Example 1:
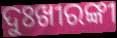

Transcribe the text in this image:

ଦୁଃଖୀରଙ୍କୀ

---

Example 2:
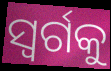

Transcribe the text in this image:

ସ୍ୱର୍ଗକୁ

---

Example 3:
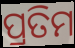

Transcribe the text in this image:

ପ୍ରତିମ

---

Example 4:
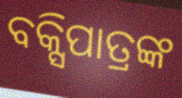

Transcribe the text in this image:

ବକ୍ସିପାତ୍ରଙ୍କ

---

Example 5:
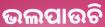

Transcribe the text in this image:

ଭଲପାଉଚି